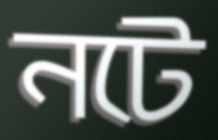
নটে